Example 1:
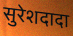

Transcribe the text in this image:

सुरेशदादा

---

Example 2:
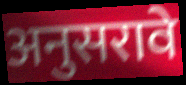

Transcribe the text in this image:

अनुसरावे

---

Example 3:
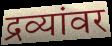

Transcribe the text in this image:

द्रव्यांवर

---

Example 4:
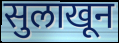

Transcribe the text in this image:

सुलाखून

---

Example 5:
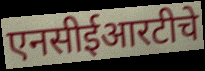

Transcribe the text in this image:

एनसीईआरटीचे